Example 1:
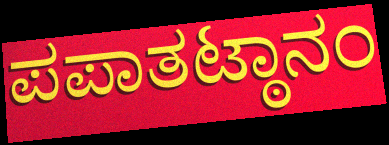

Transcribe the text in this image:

ಪಪಾತಟ್ಠಾನಂ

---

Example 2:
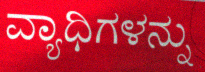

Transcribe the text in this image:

ವ್ಯಾಧಿಗಳನ್ನು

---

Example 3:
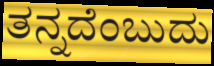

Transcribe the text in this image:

ತನ್ನದೆಂಬುದು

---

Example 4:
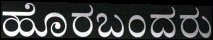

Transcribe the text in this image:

ಹೊರಬಂದರು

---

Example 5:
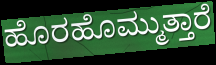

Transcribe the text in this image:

ಹೊರಹೊಮ್ಮುತ್ತಾರೆ